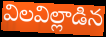
విలవిల్లాడిన